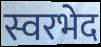
स्वरभेद